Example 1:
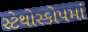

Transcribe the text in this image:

સ્ટેથોસ્કોપમાં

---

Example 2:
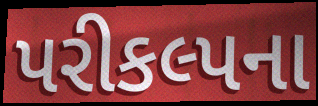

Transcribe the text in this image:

પરીકલ્પના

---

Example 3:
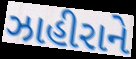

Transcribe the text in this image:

ઝાહીરાને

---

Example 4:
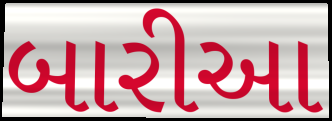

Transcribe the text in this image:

બારીઆ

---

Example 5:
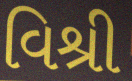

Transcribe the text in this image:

વિશ્રી